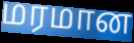
மரமான